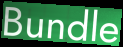
Bundle